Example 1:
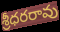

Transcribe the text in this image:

శ్రీధరరావు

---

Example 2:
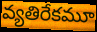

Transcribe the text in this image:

వ్యతిరేకమూ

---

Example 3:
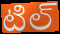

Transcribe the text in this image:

టిల్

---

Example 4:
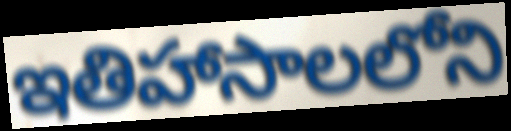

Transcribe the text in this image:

ఇతిహాసాలలోని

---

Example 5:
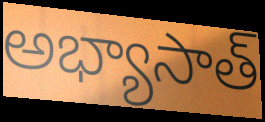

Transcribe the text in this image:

అభ్యాసాత్